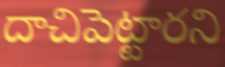
దాచిపెట్టారని